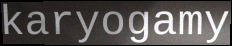
karyogamy